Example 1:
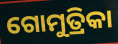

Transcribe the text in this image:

ଗୋମୁତ୍ରିକା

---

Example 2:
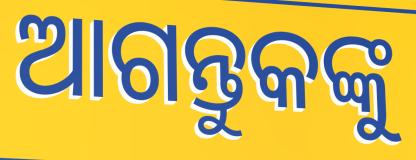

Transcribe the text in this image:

ଆଗନ୍ତୁକଙ୍କୁ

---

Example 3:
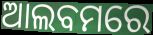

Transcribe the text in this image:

ଆଲବମରେ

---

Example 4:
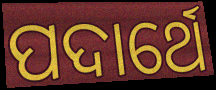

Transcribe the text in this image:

ପଦାର୍ଥେ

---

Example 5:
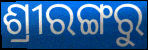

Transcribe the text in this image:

ଶ୍ରୀରଙ୍ଗରୁ